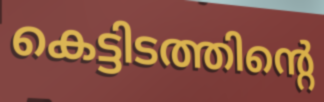
കെട്ടിടത്തിന്റെ